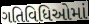
ગતિવિધિઓમાં